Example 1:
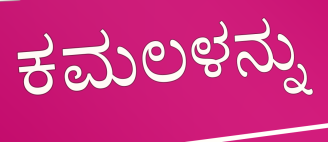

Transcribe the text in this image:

ಕಮಲಳನ್ನು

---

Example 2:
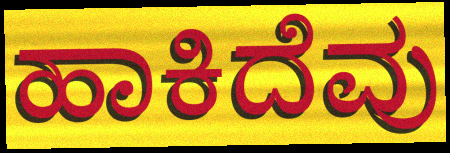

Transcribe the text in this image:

ಹಾಕಿದೆವು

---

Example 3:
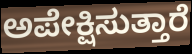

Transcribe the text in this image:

ಅಪೇಕ್ಷಿಸುತ್ತಾರೆ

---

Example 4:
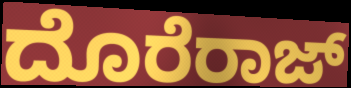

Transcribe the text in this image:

ದೊರೆರಾಜ್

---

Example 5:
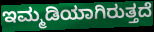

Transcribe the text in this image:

ಇಮ್ಮಡಿಯಾಗಿರುತ್ತದೆ